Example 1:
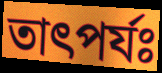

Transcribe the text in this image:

তাৎপর্যঃ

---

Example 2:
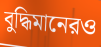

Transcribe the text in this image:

বুদ্ধিমানেরও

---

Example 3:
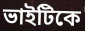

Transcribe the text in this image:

ভাইটিকে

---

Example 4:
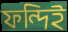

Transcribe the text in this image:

ফন্দিই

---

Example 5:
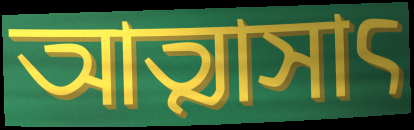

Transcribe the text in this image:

আত্মাসাৎ